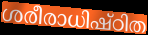
ശരീരാധിഷ്ഠിത